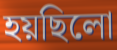
হয়ছিলো